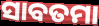
ସାବତମା